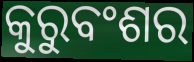
କୁରୁବଂଶର